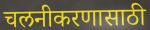
चलनीकरणासाठी